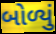
બોળ્યું